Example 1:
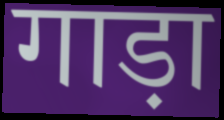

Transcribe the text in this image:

गाड़ा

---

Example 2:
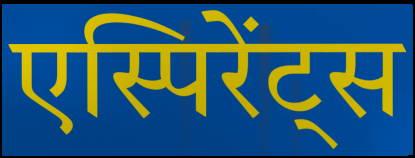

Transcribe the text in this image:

एस्पिरेंट्स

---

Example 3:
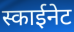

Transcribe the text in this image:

स्काईनेट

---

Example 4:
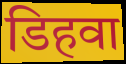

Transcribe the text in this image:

डिहवा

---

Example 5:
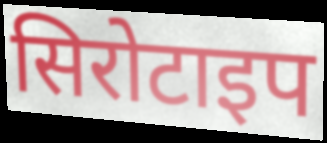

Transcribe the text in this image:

सिरोटाइप